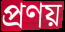
প্রণয়